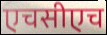
एचसीएच